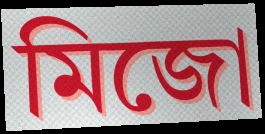
মিজো